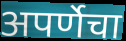
अपर्णेचा